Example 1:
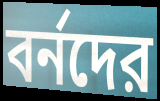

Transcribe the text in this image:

বর্নদের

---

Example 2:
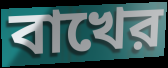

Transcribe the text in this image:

বাখের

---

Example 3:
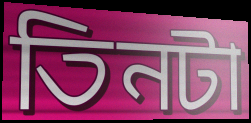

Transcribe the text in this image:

তিনটা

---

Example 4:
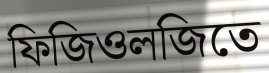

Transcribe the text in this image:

ফিজিওলজিতে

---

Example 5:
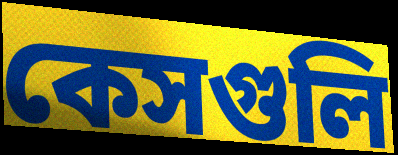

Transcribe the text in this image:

কেসগুলি